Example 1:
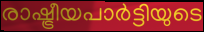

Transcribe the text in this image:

രാഷ്ട്രീയപാർട്ടിയുടെ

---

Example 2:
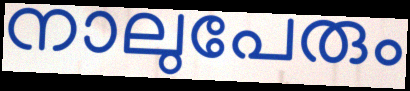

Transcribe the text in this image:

നാലുപേരും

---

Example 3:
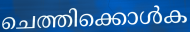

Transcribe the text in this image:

ചെത്തിക്കൊൾക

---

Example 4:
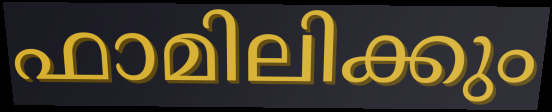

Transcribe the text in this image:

ഫാമിലിക്കും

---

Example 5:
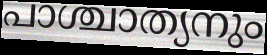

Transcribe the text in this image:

പാശ്ചാത്യനും